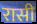
रासी